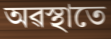
অৱস্থাতে